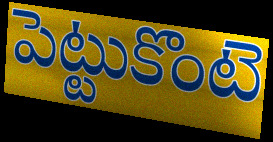
పెట్టుకొంటె